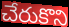
చేరుకొని